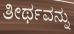
ತೀರ್ಥವನ್ನು